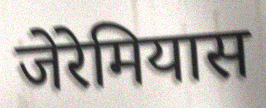
जेरेमियास